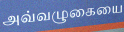
அவ்வழுகையை